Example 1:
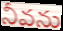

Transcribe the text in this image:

నీవను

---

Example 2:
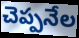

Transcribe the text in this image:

చెప్పనేల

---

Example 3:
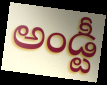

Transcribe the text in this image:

అండ్టీ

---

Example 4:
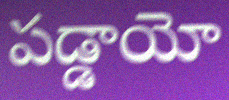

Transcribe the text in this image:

పడ్డాయో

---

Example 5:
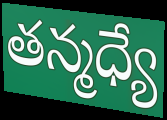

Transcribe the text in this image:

తన్మధ్యే